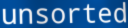
unsorted